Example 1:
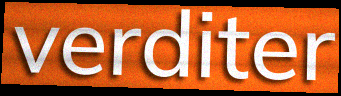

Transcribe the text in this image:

verditer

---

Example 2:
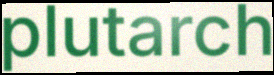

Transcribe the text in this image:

plutarch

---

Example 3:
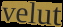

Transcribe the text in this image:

velut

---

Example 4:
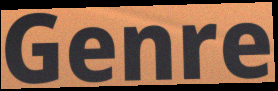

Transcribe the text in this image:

Genre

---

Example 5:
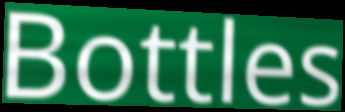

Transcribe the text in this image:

Bottles